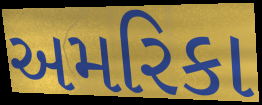
અમરિકા